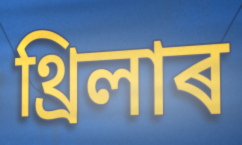
থ্ৰিলাৰ